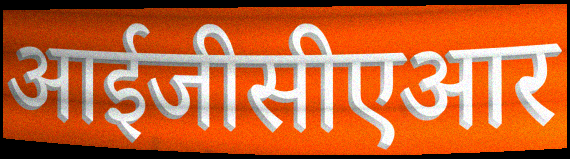
आईजीसीएआर